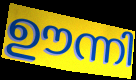
ഊന്നി